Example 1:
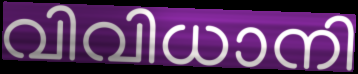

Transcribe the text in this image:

വിവിധാനി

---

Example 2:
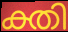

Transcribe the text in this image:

ക്തി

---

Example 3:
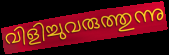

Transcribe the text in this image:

വിളിച്ചുവരുത്തുന്നു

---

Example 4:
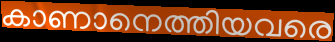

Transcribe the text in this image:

കാണാനെത്തിയവരെ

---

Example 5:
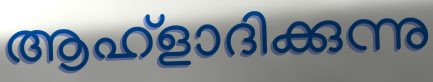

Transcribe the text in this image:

ആഹ്ളാദിക്കുന്നു